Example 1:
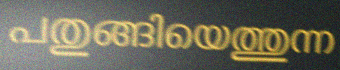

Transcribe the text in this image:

പതുങ്ങിയെത്തുന്ന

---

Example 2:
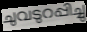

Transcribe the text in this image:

ചുവടുറപ്പിച്ചു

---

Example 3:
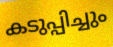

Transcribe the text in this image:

കടുപ്പിച്ചും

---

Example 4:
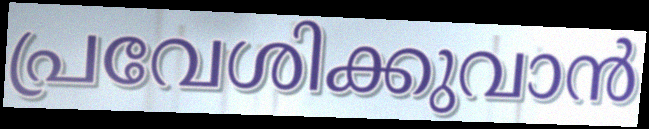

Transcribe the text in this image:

പ്രവേശിക്കുവാൻ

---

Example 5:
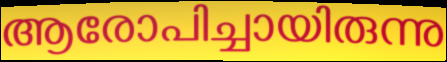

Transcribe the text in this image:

ആരോപിച്ചായിരുന്നു